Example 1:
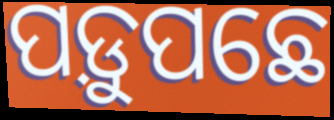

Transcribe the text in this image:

ପଡ଼ୁପଛେ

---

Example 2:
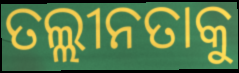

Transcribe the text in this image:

ତଲ୍ଲୀନତାକୁ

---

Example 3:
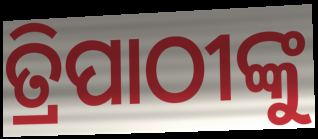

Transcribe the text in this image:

ତ୍ରିପାଠୀଙ୍କୁ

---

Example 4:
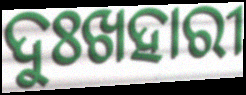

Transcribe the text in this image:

ଦୁଃଖହାରୀ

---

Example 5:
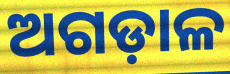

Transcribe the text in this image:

ଅଗଡ଼ାଳ